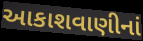
આકાશવાણીનાં